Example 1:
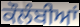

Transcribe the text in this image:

ਕੌਲੰਬੀਆਂ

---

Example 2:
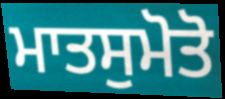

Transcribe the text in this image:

ਮਾਤਸੁਮੋਤੋ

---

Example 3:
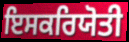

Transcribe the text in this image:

ਇਸਕਰਿਯੋਤੀ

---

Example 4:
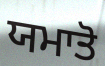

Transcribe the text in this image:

ਯਮਾਤੋ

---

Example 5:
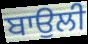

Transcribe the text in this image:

ਬਾਉਲੀ